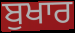
ਬੁਖਾਰ